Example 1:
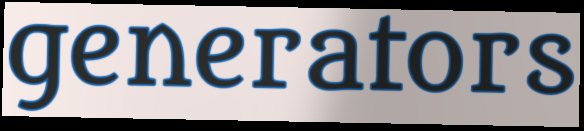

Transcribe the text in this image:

generators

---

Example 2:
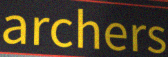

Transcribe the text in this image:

archers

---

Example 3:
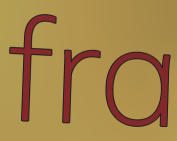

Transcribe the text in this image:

fra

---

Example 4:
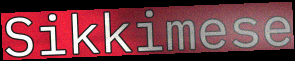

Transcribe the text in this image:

Sikkimese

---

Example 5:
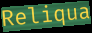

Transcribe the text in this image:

Reliqua